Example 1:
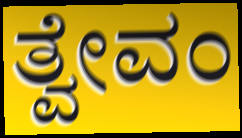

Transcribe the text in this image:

ತ್ವೇವಂ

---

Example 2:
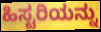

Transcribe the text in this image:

ಹಿಸ್ಟರಿಯನ್ನು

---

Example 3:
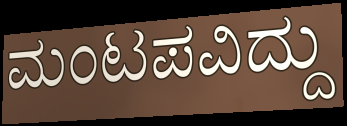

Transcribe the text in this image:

ಮಂಟಪವಿದ್ದು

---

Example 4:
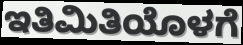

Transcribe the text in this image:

ಇತಿಮಿತಿಯೊಳಗೆ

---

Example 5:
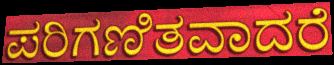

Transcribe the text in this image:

ಪರಿಗಣಿತವಾದರೆ